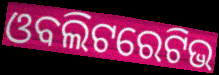
ଓବଲିଟରେଟିଭ